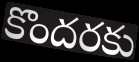
కొందరకు